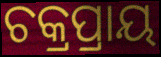
ଚକ୍ରପ୍ରାୟ